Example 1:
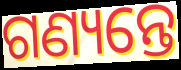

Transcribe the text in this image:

ଗଣ୍ୟନ୍ତେ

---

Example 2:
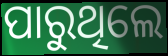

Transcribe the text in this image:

ପାରୁଥିଲେ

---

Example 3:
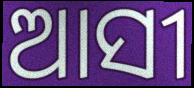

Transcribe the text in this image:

ଆସୀ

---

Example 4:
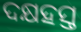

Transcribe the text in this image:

ଦକ୍ଷହସ୍ତ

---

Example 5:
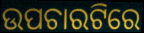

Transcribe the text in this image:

ଉପଚାରଟିରେ